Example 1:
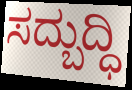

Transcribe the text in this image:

ಸದ್ಬುದ್ಧಿ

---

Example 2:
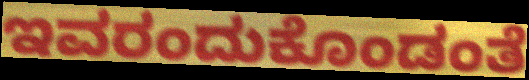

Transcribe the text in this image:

ಇವರಂದುಕೊಂಡಂತೆ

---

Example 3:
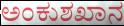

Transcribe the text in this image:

ಅಂಕುಶಖಾನ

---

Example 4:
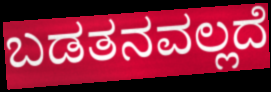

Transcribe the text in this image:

ಬಡತನವಲ್ಲದೆ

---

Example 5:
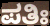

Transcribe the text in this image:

ಪತಿಃ